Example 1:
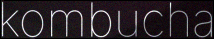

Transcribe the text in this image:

kombucha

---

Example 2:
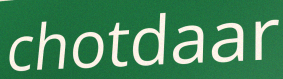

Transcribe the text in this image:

chotdaar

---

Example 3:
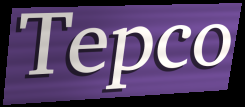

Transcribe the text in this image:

Tepco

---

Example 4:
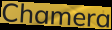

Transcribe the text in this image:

Chamera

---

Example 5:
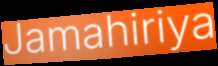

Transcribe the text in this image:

Jamahiriya